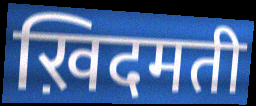
ख़िदमती